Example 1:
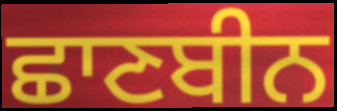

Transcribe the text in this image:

ਛਾਣਬੀਨ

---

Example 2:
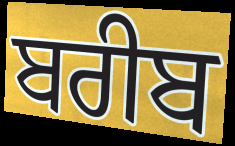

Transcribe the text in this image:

ਬਰੀਬ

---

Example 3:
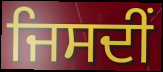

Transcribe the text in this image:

ਜਿਸਦੀਂ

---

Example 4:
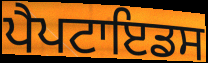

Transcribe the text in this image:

ਪੈਪਟਾਇਡਸ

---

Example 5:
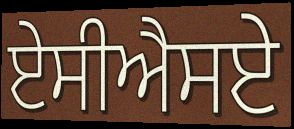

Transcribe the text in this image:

ਏਸੀਐਸਏ